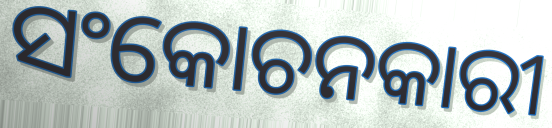
ସଂକୋଚନକାରୀ